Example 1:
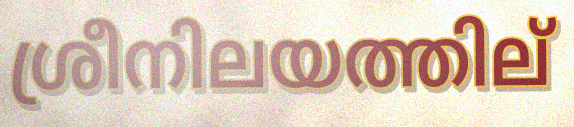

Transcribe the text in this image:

ശ്രീനിലയത്തില്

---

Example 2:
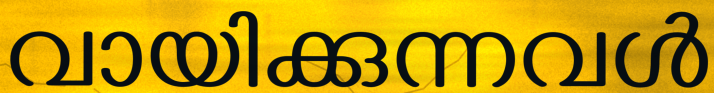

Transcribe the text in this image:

വായിക്കുന്നവൾ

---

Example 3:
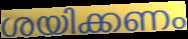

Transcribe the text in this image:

ശയിക്കണം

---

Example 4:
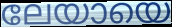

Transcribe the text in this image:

ലേയായെ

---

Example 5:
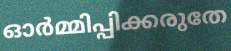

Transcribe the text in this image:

ഓർമ്മിപ്പിക്കരുതേ